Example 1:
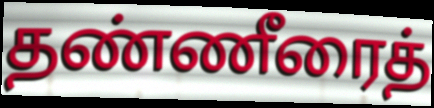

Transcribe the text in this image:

தண்ணீரைத்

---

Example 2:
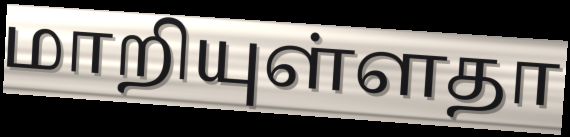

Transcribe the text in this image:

மாறியுள்ளதா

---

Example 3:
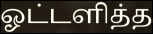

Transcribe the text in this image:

ஓட்டளித்த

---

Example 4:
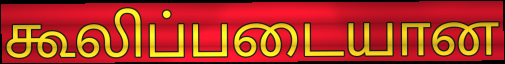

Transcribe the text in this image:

கூலிப்படையான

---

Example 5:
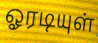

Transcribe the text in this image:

ஓரடியுள்